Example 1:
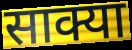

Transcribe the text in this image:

साक्या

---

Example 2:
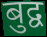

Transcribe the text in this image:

बुद्व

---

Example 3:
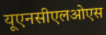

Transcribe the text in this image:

यूएनसीएलओएस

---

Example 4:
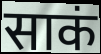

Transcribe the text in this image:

साकं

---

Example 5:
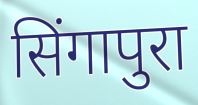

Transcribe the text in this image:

सिंगापुरा